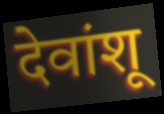
देवांशू